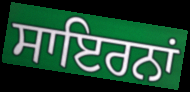
ਸਾਇਰਨਾਂ